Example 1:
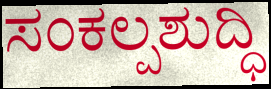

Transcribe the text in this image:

ಸಂಕಲ್ಪಶುದ್ಧಿ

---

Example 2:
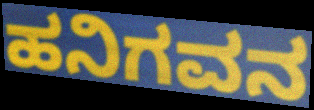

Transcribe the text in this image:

ಹನಿಗವನ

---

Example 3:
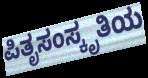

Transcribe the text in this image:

ಪಿತೃಸಂಸ್ಕೃತಿಯ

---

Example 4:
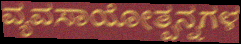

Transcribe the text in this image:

ವ್ಯವಸಾಯೋತ್ಪನ್ನಗಳ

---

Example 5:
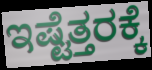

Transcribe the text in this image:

ಇಷ್ಟೆತ್ತರಕ್ಕೆ